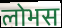
लोभस